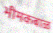
भीमकबाळ